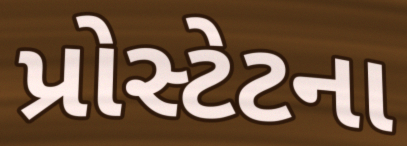
પ્રોસ્ટેટના